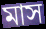
মাস